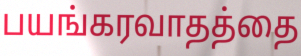
பயங்கரவாதத்தை